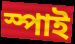
স্পাই